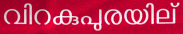
വിറകുപുരയില്